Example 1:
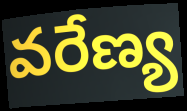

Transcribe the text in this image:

వరేణ్య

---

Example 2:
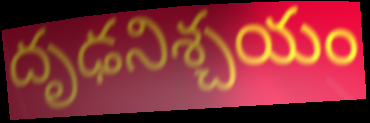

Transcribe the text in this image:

దృఢనిశ్చయం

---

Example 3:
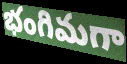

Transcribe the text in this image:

భంగిమగా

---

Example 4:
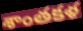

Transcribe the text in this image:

శాంతకళ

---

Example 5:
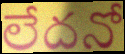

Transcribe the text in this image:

లేదనో